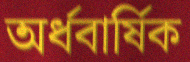
অর্ধবার্ষিক